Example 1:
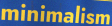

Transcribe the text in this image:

minimalism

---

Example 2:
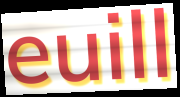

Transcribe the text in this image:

euill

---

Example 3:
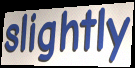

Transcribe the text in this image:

slightly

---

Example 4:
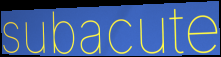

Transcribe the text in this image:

subacute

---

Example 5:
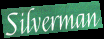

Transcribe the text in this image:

Silverman